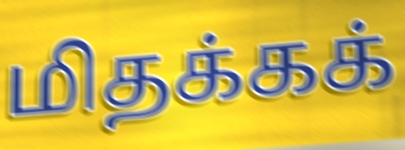
மிதக்கக்